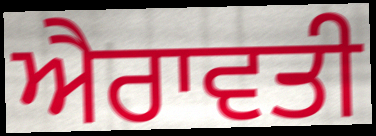
ਐਰਾਵਤੀ